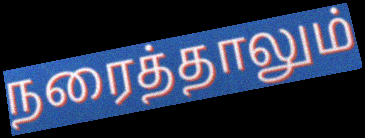
நரைத்தாலும்